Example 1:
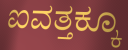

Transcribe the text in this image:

ಐವತ್ತಕ್ಕೂ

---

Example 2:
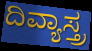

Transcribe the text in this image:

ದಿವ್ಯಾಸ್ತ್ರ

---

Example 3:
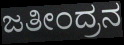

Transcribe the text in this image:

ಜತೀಂದ್ರನ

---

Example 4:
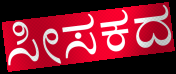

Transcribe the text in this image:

ಸೀಸಕದ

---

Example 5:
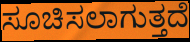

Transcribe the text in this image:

ಸೂಚಿಸಲಾಗುತ್ತದೆ